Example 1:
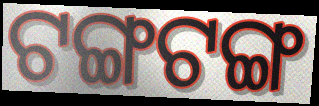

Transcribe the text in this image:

ଟଙ୍ଗଟଙ୍ଗ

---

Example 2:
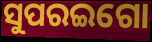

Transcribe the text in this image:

ସୁପରଇଗୋ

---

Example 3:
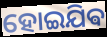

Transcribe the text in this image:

ହୋଇଯିଵ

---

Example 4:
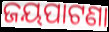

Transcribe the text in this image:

ଜୟପାଟଣା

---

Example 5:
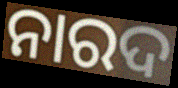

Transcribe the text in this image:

ନାରଦ